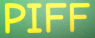
PIFF